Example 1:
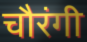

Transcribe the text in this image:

चौरंगी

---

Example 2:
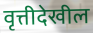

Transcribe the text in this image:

वृत्तीदेखील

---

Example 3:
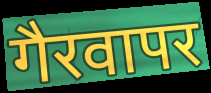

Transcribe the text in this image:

गैरवापर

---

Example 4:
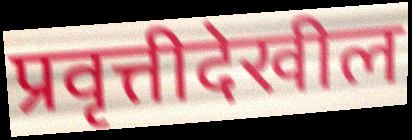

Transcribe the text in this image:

प्रवृत्तीदेखील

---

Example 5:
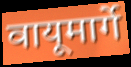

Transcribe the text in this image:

वायूमार्गे